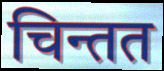
चिन्तत